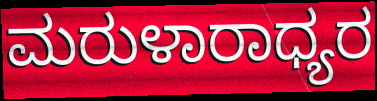
ಮರುಳಾರಾಧ್ಯರ